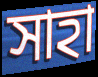
সাহা